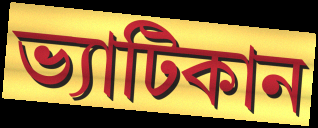
ভ্যাটিকান